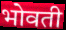
भोवती